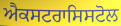
ਐਕਸਟਰਾਸਿਸਟੋਲ